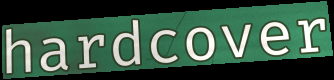
hardcover